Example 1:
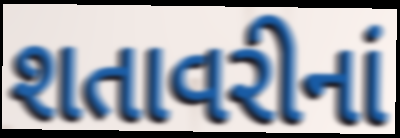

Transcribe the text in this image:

શતાવરીનાં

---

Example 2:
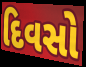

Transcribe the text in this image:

દિવસો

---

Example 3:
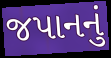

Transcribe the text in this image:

જપાનનું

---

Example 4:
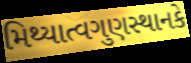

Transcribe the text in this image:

મિથ્યાત્વગુણસ્થાનકે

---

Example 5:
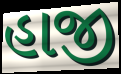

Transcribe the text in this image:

હાજી